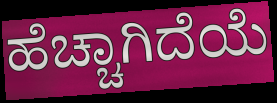
ಹೆಚ್ಚಾಗಿದೆಯೆ